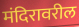
मंदिरावरील